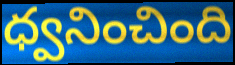
ధ్వనించింది